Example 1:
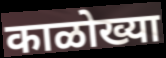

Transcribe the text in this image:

काळोख्या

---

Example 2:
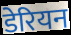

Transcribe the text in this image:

डेरियन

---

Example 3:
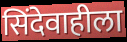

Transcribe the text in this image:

सिंदेवाहीला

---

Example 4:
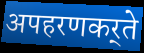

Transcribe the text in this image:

अपहरणकर्ते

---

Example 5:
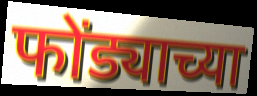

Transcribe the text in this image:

फोंड्याच्या